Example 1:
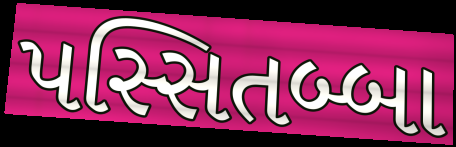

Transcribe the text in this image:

પસ્સિતબ્બા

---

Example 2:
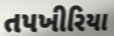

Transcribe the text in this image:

તપખીરિયા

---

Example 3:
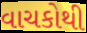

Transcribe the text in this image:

વાચકોથી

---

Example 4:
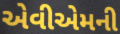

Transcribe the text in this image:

એવીએમની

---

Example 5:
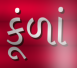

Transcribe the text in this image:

કૂંળાં